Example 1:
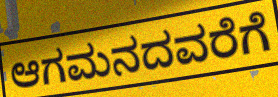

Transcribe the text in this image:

ಆಗಮನದವರೆಗೆ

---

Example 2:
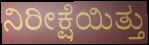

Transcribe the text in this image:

ನಿರೀಕ್ಷೆಯಿತ್ತು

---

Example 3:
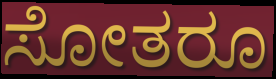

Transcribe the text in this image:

ಸೋತರೂ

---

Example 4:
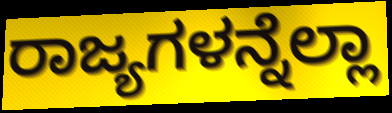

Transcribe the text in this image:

ರಾಜ್ಯಗಳನ್ನೆಲ್ಲಾ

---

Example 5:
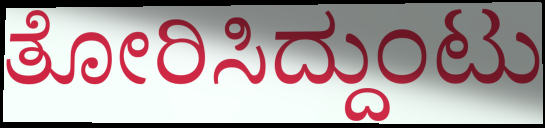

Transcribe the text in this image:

ತೋರಿಸಿದ್ದುಂಟು